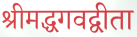
श्रीमद्धगवद्वीता